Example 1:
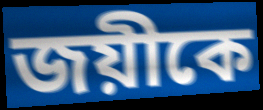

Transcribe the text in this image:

জয়ীকে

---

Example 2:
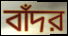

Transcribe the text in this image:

বাঁদর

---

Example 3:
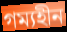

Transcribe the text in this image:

গম্যহীন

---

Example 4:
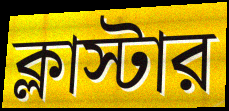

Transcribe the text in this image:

ক্লাস্টার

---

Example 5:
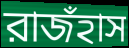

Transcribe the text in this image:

রাজঁহাস